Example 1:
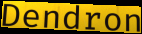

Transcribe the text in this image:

Dendron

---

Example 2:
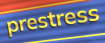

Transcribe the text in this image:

prestress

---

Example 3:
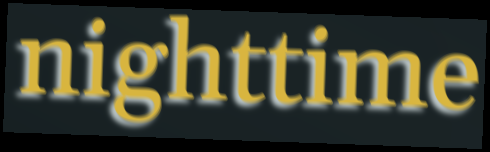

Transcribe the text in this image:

nighttime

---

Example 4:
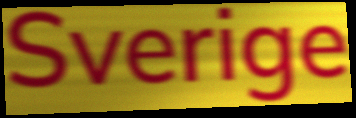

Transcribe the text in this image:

Sverige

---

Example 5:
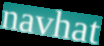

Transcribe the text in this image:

navhat